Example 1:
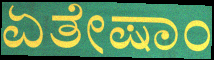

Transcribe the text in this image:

ಏತೇಷಾಂ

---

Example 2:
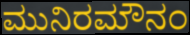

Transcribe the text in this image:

ಮುನಿರಮೌನಂ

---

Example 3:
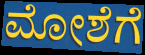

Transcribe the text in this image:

ಮೋಶೆಗೆ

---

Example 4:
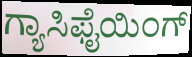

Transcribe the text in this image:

ಗ್ಯಾಸಿಫೈಯಿಂಗ್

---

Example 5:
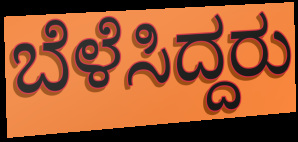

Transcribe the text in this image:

ಬೆಳೆಸಿದ್ದರು